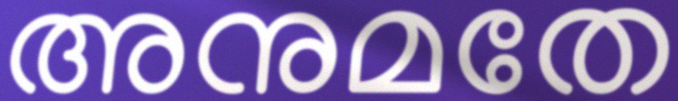
അനുമതേ